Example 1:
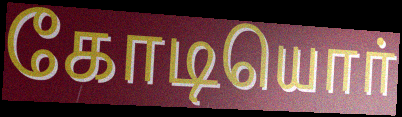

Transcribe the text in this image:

கோடியொர்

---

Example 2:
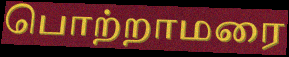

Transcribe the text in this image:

பொற்றாமரை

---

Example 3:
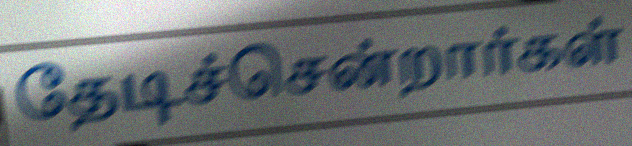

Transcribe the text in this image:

தேடிச்சென்றார்கள்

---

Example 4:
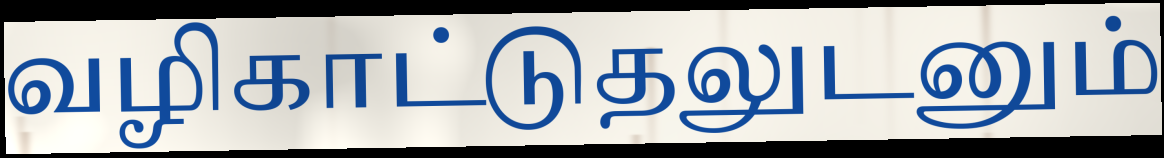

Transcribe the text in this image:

வழிகாட்டுதலுடனும்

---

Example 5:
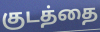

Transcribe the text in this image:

குடத்தை